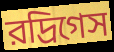
রদ্রিগেস